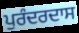
ਪੁਰੰਦਰਦਾਸ